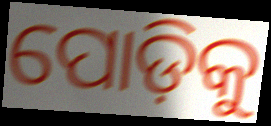
ପୋଡ଼ିକୁ